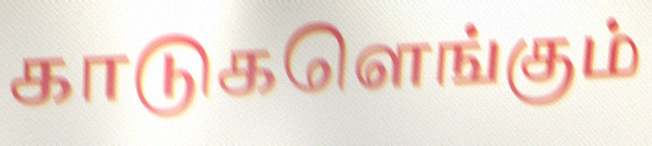
காடுகளெங்கும்